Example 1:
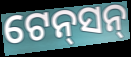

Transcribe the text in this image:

ଟେନ୍‌ସନ୍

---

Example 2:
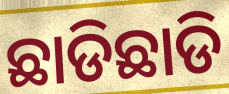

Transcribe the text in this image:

ଛାଡିଛାଡି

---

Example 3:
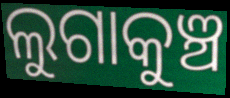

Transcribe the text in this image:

ଲୁଗାକୁଞ୍ଚ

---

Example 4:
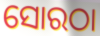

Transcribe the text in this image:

ସୋରଠା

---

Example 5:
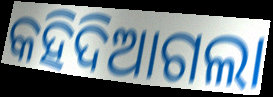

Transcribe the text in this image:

କହିଦିଆଗଲା